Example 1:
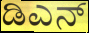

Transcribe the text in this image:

ಡಿಎನ್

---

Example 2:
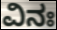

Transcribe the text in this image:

ವಿನಃ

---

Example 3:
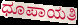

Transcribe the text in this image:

ಧೂಪಾಯತಿ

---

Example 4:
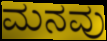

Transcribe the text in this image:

ಮನವು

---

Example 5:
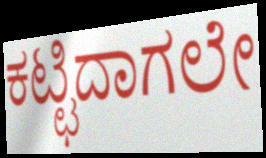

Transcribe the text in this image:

ಕಟ್ಟಿದಾಗಲೇ